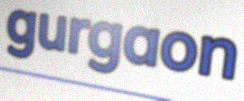
gurgaon